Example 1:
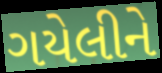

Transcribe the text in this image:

ગયેલીને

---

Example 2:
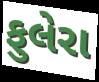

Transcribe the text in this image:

ફુલેરા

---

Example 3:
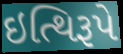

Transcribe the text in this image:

ઇત્થિરૂપે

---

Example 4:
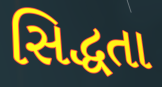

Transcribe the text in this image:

સિદ્ધતા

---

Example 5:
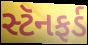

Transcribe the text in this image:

સ્ટૅનફર્ડ